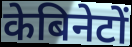
केबिनेटों